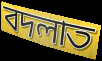
বদলাত